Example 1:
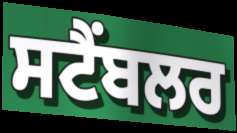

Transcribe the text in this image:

ਸਟੈਂਬਲਰ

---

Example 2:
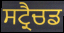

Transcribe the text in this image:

ਸਟ੍ਰੈਚਡ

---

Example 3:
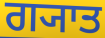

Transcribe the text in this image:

ਗ੍ਯਾਤ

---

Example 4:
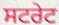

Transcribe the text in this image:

ਸਟਰੇਟ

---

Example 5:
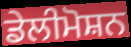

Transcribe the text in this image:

ਡੇਲੀਮੋਸ਼ਨ